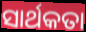
ସାର୍ଥକତା